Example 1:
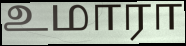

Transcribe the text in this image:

உமாரா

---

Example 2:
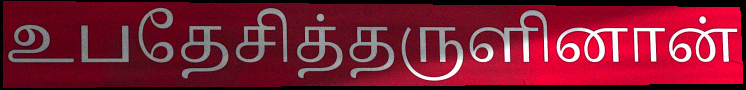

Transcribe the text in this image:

உபதேசித்தருளினான்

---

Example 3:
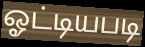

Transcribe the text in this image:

ஓட்டியபடி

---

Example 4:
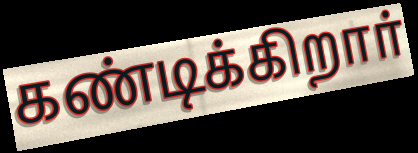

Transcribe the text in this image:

கண்டிக்கிறார்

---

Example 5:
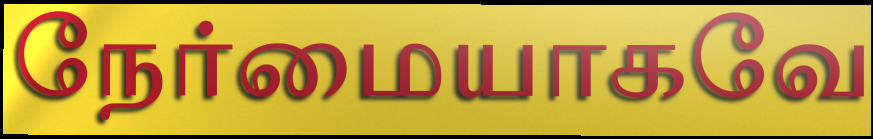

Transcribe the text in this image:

நேர்மையாகவே